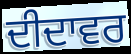
ਦੀਦਾਵਰ